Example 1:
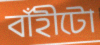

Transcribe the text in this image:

বাঁহীটো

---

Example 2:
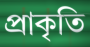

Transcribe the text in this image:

প্ৰাকৃতি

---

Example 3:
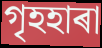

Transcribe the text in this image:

গৃহহাৰা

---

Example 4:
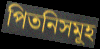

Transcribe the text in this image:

পিতনিসমূহ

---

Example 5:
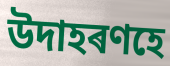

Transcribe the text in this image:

উদাহৰণহে